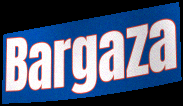
Bargaza